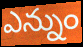
ఎన్నుం